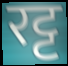
रट्ट